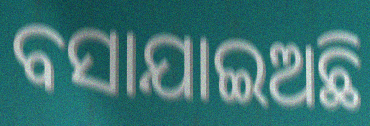
ବସାଯାଇଅଛି